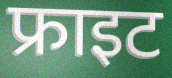
फ्राइट